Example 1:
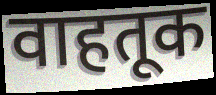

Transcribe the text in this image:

वाहतूक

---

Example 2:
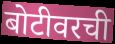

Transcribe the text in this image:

बोटीवरची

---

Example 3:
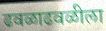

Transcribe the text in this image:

ढवळाढवळीला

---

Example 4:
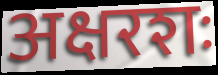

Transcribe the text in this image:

अक्षरशः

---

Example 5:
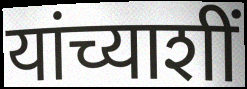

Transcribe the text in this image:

यांच्याशीं